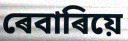
ৰেবাৰিয়ে